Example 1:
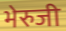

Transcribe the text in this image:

भेरुजी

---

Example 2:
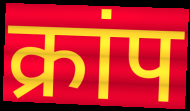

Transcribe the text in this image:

क्रांप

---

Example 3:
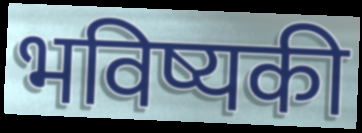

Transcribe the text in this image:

भविष्यकी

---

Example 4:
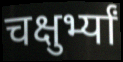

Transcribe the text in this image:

चक्षुर्भ्यां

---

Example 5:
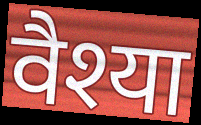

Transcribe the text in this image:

वैश्या